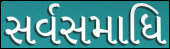
સર્વસમાધિ